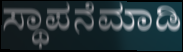
ಸ್ಥಾಪನೆಮಾಡಿ